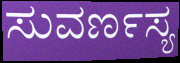
ಸುವರ್ಣಸ್ಯ